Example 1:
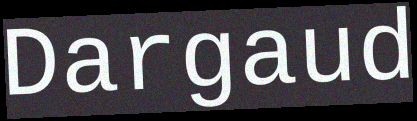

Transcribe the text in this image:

Dargaud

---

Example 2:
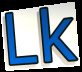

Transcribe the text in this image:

Lk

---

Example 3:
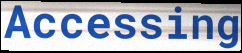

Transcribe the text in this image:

Accessing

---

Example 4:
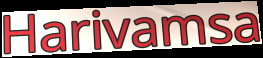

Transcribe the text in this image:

Harivamsa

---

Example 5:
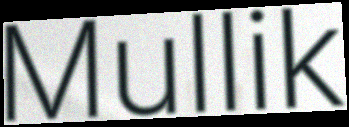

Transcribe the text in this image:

Mullik